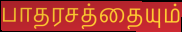
பாதரசத்தையும்